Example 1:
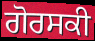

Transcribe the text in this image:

ਗੋਰਸਕੀ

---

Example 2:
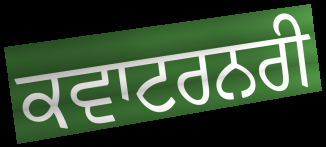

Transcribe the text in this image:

ਕਵਾਟਰਨਰੀ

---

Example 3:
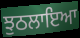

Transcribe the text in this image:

ਝੁਠਲਾਇਆ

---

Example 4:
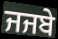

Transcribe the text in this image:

ਜਜਬੇ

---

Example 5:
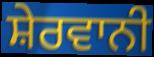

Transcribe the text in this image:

ਸ਼ੇਰਵਾਨੀ